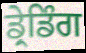
ਡ੍ਰੇਡਿੰਗ